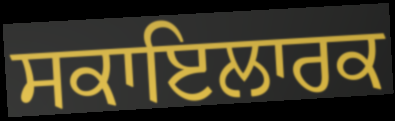
ਸਕਾਇਲਾਰਕ